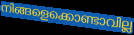
നിങ്ങളെക്കൊണ്ടാവില്ല